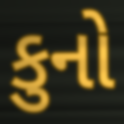
કુનો